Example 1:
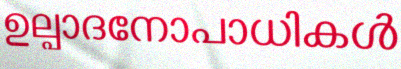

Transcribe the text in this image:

ഉല്പാദനോപാധികൾ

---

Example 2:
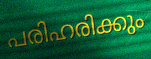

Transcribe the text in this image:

പരിഹരിക്കും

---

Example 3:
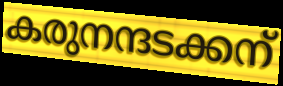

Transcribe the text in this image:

കരുനന്ദടക്കന്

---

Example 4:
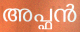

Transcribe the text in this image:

അപ്ഫൻ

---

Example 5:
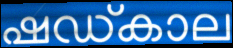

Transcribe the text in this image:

ഷഡ്കാല